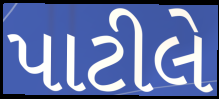
પાટીલે